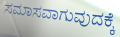
ಸಮಾಸವಾಗುವುದಕ್ಕೆ